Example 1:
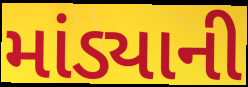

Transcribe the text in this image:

માંડ્યાની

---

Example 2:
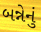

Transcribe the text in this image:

બન્નેનું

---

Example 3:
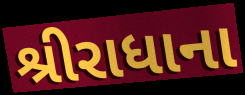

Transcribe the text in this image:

શ્રીરાધાના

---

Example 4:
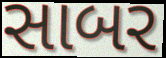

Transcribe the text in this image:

સાબર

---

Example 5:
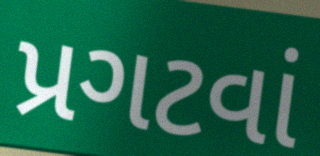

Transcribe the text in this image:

પ્રગટવાં